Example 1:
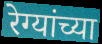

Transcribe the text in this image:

रेग्यांच्या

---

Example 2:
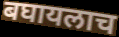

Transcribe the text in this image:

बघायलाच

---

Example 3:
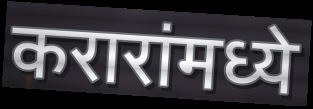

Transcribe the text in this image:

करारांमध्ये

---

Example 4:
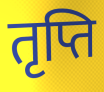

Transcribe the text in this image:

तृप्ति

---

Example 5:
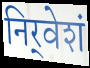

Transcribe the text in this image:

निर्वेशं